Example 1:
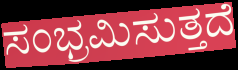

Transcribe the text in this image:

ಸಂಭ್ರಮಿಸುತ್ತದೆ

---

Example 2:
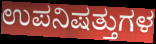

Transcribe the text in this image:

ಉಪನಿಷತ್ತುಗಳ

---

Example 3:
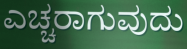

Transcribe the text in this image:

ಎಚ್ಚರಾಗುವುದು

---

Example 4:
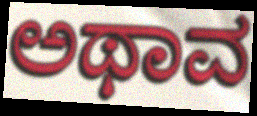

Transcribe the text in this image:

ಅಥಾವ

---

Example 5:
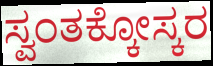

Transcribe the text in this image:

ಸ್ವಂತಕ್ಕೋಸ್ಕರ